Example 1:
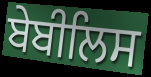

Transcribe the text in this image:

ਬੇਬੀਲਿਸ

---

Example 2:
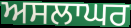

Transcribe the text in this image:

ਅਸਲਾਘਰ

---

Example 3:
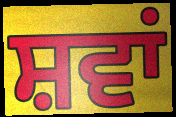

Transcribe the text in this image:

ਸ਼ਵਾਂ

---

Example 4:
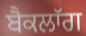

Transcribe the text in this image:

ਬੈਕਲਾੱਗ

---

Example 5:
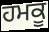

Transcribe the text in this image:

ਹਮਕੂ